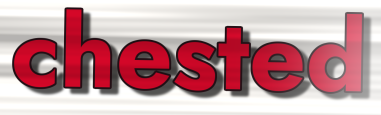
chested